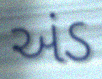
અંડ